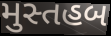
મુસ્તહબ